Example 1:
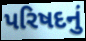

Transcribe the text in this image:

પરિષદનું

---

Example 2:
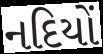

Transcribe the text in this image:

નદિયોં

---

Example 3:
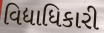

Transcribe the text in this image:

વિદ્યાધિકારી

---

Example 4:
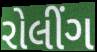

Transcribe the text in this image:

રોલીંગ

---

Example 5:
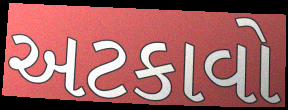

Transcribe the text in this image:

અટકાવો